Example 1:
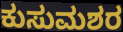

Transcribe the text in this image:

ಕುಸುಮಶರ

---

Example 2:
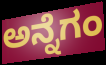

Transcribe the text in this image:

ಅನ್ನೆಗಂ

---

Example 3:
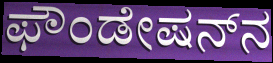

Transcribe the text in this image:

ಫೌಂಡೇಷನ್‌ನ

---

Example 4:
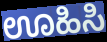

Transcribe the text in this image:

ಊಹಿಸಿ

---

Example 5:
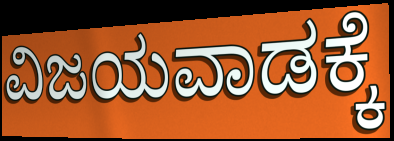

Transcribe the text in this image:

ವಿಜಯವಾಡಕ್ಕೆ